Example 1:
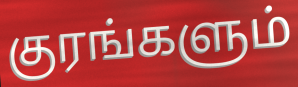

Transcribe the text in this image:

குரங்களும்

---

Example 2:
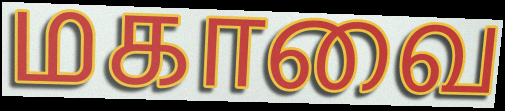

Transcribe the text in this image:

மகாவை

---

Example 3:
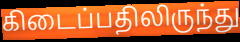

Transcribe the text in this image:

கிடைப்பதிலிருந்து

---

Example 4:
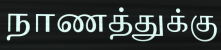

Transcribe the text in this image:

நாணத்துக்கு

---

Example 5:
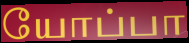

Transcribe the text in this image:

யோப்பா